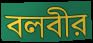
বলবীর